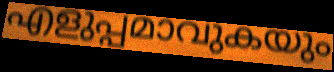
എളുപ്പമാവുകയും